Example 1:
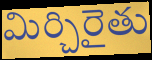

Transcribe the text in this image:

మిర్చిరైతు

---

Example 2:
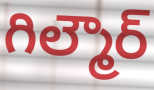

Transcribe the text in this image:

గిల్మౌర్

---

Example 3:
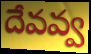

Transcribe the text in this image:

దేవవ్వ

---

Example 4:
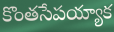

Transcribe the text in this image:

కొంతసేపయ్యాక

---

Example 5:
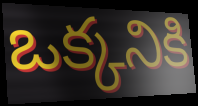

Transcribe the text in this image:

ఒక్కనికి